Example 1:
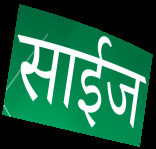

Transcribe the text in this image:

साईज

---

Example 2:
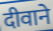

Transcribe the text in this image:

दीवाने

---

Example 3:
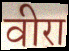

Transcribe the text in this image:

वीरा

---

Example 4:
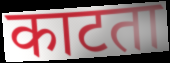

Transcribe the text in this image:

काटता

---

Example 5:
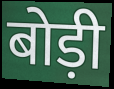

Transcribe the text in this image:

बोड़ी